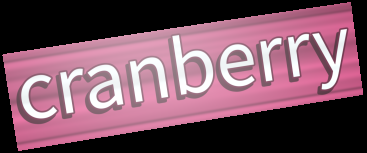
cranberry